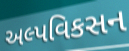
અલ્પવિકસન